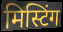
मिस्टिंग